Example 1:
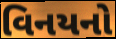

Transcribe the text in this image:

વિનયનો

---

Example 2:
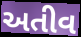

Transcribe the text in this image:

અતીવ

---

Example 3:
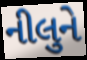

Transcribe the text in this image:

નીલુને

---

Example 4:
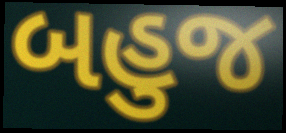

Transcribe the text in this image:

બહુજ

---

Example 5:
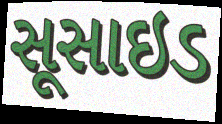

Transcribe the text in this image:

સૂસાઇડ